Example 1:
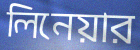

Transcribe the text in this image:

লিনেয়ার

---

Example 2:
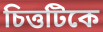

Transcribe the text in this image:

চিত্তটিকে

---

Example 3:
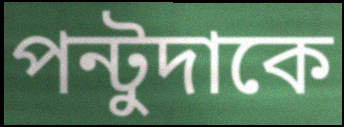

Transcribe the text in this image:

পন্টুদাকে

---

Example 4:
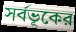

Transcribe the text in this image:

সর্বভূকের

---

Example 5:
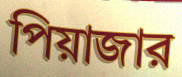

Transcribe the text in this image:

পিয়াজার